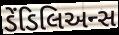
ડેંડિલિઅન્સ